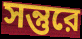
সন্তুরে